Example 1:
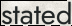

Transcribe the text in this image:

stated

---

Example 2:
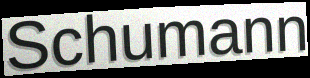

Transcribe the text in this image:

Schumann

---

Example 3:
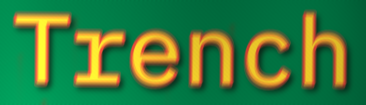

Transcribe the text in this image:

Trench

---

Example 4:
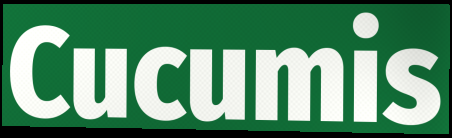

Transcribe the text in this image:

Cucumis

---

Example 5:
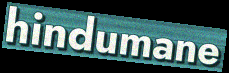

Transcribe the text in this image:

hindumane